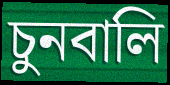
চুনবালি